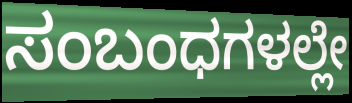
ಸಂಬಂಧಗಳಲ್ಲೇ